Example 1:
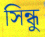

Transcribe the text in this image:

সিন্ধু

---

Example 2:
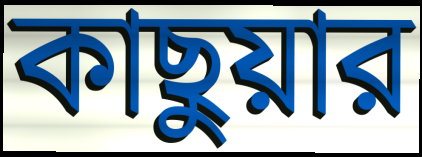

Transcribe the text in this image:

কাছুয়ার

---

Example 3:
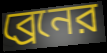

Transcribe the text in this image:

ব্রেনের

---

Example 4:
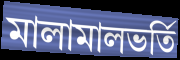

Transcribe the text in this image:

মালামালভর্তি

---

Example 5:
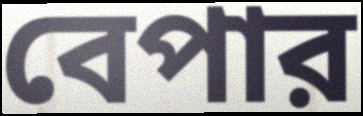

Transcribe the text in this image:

বেপার